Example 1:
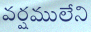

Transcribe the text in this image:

వర్షములేని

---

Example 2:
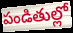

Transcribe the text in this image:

పండితుల్లో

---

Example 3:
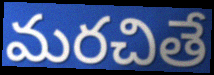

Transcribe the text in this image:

మరచితే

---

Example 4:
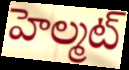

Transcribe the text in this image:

హెల్మట్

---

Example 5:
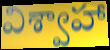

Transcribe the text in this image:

విశ్వాహా